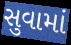
સુવામાં